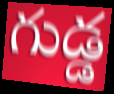
గుడ్డ